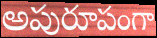
అపురూపంగా